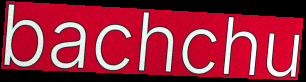
bachchu